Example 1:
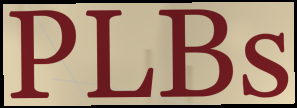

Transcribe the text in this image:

PLBs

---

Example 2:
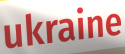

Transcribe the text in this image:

ukraine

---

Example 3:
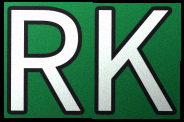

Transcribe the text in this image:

RK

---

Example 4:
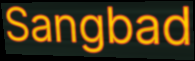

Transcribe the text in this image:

Sangbad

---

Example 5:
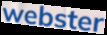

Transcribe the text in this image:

webster